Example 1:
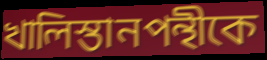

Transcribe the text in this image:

খালিস্তানপন্থীকে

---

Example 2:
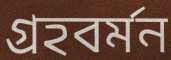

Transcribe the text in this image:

গ্রহবর্মন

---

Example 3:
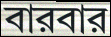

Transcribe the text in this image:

বারবার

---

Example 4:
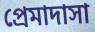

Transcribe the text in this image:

প্রেমাদাসা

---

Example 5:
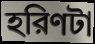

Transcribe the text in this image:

হরিণটা